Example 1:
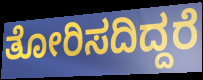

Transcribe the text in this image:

ತೋರಿಸದಿದ್ದರೆ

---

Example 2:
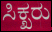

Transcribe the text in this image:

ಸಿಕ್ಖರು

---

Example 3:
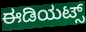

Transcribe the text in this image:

ಈಡಿಯಟ್ಸ್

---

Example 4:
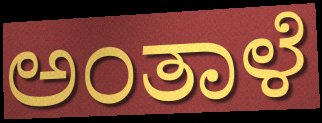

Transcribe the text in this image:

ಅಂತಾಳೆ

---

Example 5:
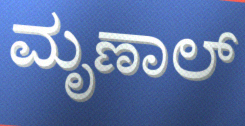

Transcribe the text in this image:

ಮೃಣಾಲ್